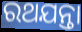
ରଥଯନ୍ତା